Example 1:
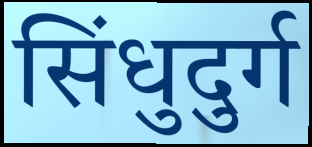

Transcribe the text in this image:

सिंधुदुर्ग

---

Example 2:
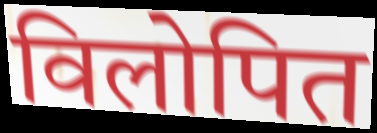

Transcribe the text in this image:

विलोपित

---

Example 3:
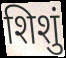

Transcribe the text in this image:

शिशुं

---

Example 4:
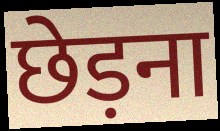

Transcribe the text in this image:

छेड़ना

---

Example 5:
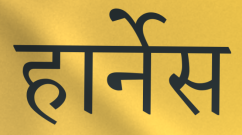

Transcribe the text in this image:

हार्नेस